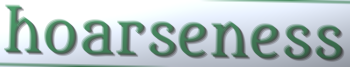
hoarseness